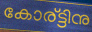
കോര്ട്ടിനു